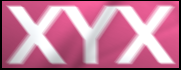
XYX